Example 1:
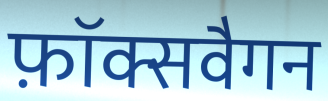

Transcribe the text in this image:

फ़ॉक्सवैगन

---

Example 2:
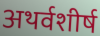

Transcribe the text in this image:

अथर्वशीर्ष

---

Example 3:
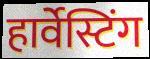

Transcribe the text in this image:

हार्वेस्टिंग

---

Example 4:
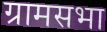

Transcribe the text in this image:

ग्रामसभा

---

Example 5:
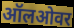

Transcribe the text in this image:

ऑलओवर